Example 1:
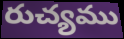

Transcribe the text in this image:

రుచ్యము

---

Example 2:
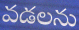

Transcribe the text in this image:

వడలను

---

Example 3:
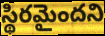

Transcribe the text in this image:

స్థిరమైందని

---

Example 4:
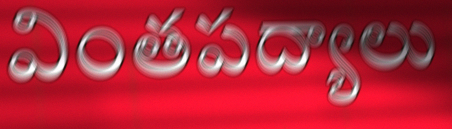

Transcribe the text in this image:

వింతపద్యాలు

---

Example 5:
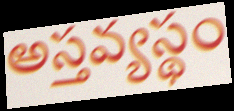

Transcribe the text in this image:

అస్తవ్యస్థం